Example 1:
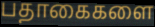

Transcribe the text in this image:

பதாகைகளை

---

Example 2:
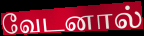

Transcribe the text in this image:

வேடனால்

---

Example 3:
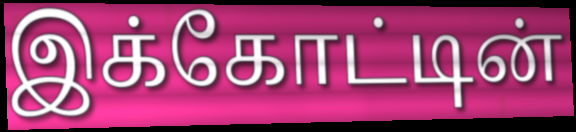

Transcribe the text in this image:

இக்கோட்டின்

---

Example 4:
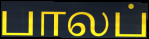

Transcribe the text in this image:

பாலப்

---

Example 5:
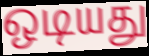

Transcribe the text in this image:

ஒடியது